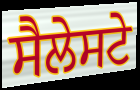
ਸੈਲੇਸਟੇ